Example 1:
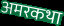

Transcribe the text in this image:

अमरकथा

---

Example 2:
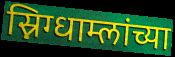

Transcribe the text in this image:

स्निग्धाम्लांच्या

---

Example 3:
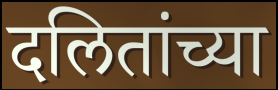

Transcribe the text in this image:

दलितांच्या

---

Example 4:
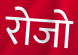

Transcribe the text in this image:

रोजो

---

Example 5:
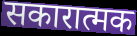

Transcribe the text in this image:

सकारात्मक